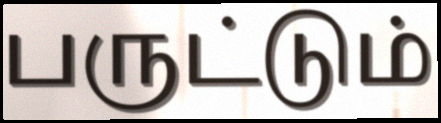
பருட்டும்